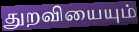
துறவியையும்